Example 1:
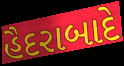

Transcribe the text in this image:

હૈદરાબાદે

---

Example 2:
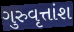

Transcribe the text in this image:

ગુરુવૃત્તાંશ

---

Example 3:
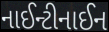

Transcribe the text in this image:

નાઈન્ટીનાઈન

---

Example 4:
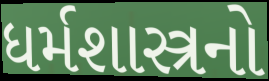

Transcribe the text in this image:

ધર્મશાસ્ત્રનો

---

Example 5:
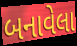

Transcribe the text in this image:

બનાવેલા